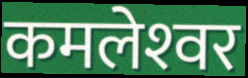
कमलेश्‍वर